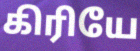
கிரியே